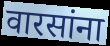
वारसांना